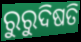
ରୁରୁଦିଷତି